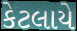
કેટલાયે